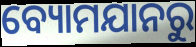
ବ୍ୟୋମଯାନରୁ